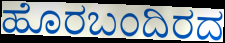
ಹೊರಬಂದಿರದ